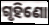
ଗୃହିଣୋ